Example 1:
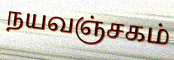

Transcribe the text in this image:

நயவஞ்சகம்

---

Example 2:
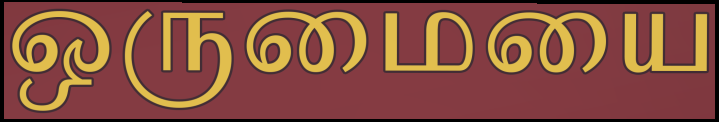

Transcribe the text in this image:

ஒருமையை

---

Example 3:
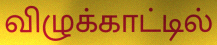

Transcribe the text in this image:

விழுக்காட்டில்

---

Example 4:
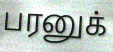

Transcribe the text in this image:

பரனுக்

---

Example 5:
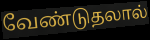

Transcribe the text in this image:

வேண்டுதலால்